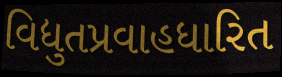
વિદ્યુતપ્રવાહધારિત